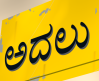
ಅದಲು